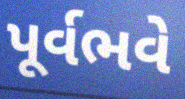
પૂર્વભવે